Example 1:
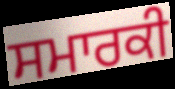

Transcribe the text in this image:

ਸਮਾਰਕੀ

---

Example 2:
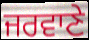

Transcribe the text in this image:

ਜਰਵਾਣੇ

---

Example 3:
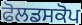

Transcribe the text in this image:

ਫੋਲਡਸਕੋਪ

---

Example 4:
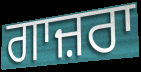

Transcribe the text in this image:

ਗਾਜ਼ਰਾ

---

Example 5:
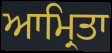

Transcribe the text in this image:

ਆਮ੍ਰਿਤਾ